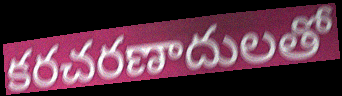
కరచరణాదులతో